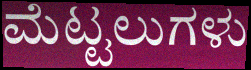
ಮೆಟ್ಟಲುಗಳು